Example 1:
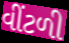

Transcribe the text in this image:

વીંટળી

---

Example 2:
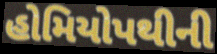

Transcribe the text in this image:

હોમિયોપથીની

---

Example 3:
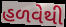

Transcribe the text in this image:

હળવેથી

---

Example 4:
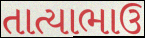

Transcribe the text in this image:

તાત્યાભાઉ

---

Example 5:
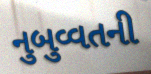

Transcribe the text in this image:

નુબુવ્વતની